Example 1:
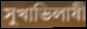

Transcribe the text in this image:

সুখাভিলাষী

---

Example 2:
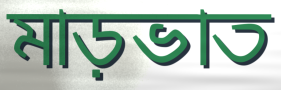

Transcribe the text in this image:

মাড়ভাত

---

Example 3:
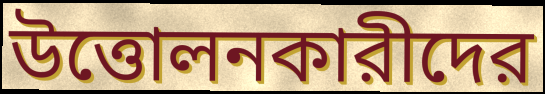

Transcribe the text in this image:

উত্তোলনকারীদের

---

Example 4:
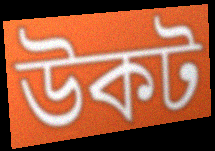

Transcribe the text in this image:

উকট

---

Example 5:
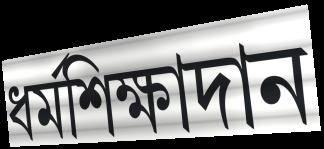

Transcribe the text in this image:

ধর্মশিক্ষাদান